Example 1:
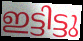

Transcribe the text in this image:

ഇട്ടിട്ടു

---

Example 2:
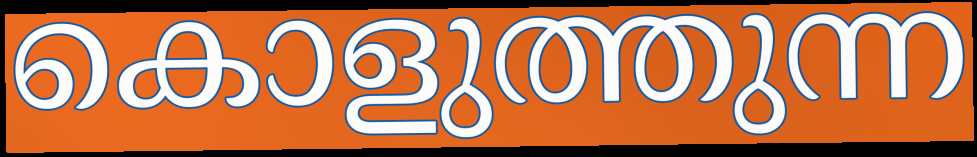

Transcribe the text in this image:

കൊളുത്തുന്ന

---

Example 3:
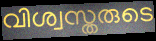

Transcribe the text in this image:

വിശ്വസ്തരുടെ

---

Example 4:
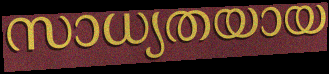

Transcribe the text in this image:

സാധ്യതയായ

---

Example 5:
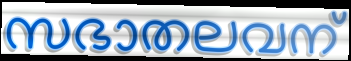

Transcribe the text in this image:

സഭാതലവന്